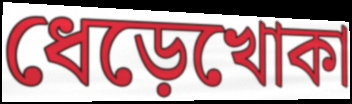
ধেড়েখোকা